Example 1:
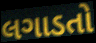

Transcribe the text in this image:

લગાડતો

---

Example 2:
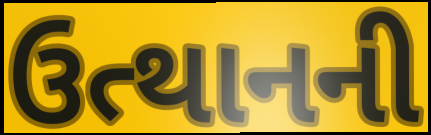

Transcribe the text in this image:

ઉત્થાનની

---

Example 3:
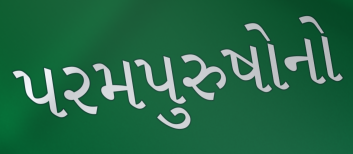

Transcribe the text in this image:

પરમપુરુષોનો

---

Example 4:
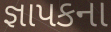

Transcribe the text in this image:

જ્ઞાપકના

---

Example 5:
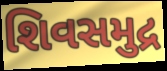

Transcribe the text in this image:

શિવસમુદ્ર